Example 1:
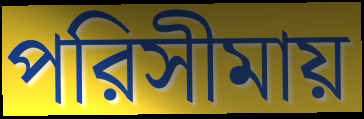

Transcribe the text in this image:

পরিসীমায়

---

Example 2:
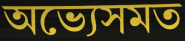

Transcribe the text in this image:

অভ্যেসমত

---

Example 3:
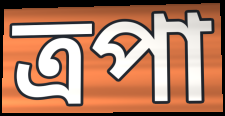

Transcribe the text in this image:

ত্রপা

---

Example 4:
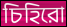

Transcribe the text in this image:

চিহিরো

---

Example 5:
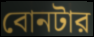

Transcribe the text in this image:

বোনটার